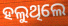
ହଲୁଥିଲେ